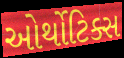
ઓર્થોટિક્સ